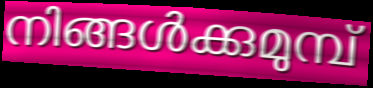
നിങ്ങൾക്കുമുമ്പ്